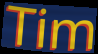
Tim